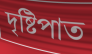
দৃষ্টিপাত